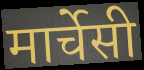
मार्चेसी